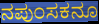
ನಪುಂಸಕನೂ